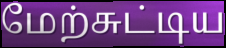
மேற்சுட்டிய